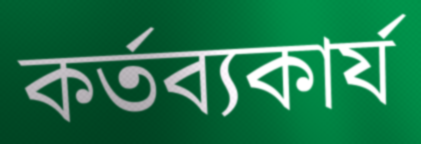
কর্তব্যকার্য